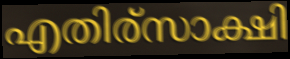
എതിര്സാക്ഷി